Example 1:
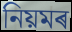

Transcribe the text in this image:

নিয়মৰ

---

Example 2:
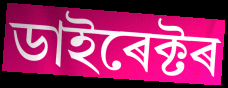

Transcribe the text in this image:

ডাইৰেক্টৰ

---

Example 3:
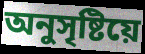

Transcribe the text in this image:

অনুসৃষ্টিয়ে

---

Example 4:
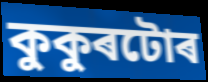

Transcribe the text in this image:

কুকুৰটোৰ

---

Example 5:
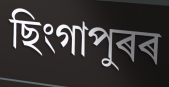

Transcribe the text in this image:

ছিংগাপুৰৰ